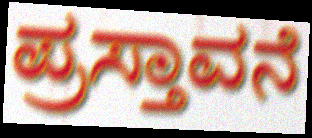
ಪ್ರಸ್ತಾವನೆ